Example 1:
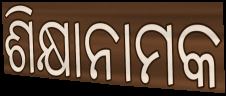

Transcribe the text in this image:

ଶିକ୍ଷାନାମକ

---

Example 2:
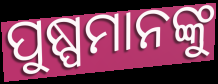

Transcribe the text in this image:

ପୁଷ୍ପମାନଙ୍କୁ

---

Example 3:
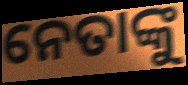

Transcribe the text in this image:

ନେତାଙ୍କୁ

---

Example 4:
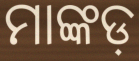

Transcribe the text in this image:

ମାଙ୍କଡ଼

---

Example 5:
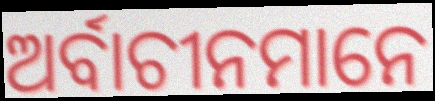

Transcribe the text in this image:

ଅର୍ବାଚୀନମାନେ